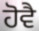
ਹੋਵੈ